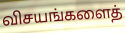
விசயங்களைத்